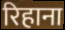
रिहाना